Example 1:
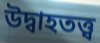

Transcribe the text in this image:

উদ্বাহতত্ত্ব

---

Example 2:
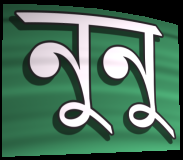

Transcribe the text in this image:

নুনু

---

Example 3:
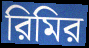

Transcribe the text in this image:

রিমির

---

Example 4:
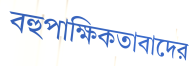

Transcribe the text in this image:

বহুপাক্ষিকতাবাদের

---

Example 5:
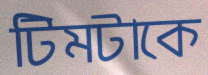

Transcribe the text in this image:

টিমটাকে